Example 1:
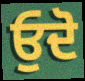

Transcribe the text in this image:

ਓੁਦੋ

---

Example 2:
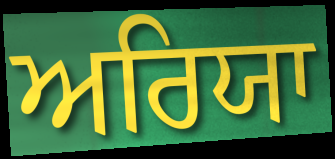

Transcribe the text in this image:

ਅਰਿਯਾ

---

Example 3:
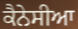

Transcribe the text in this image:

ਕੈਨੇਸੀਆ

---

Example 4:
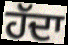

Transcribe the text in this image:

ਹੱਦਾ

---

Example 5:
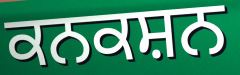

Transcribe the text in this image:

ਕਨਕਸ਼ਨ